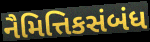
નૈમિત્તિકસંબંધ